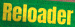
Reloader